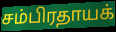
சம்பிரதாயக்